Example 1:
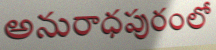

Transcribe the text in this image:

అనురాధపురంలో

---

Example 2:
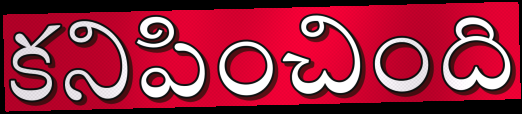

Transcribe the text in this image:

కనిపించింది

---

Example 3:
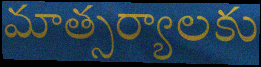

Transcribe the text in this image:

మాత్సర్యాలకు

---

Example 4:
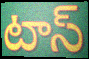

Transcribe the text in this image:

టాస్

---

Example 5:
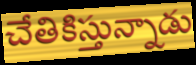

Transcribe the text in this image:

చేతికిస్తున్నాడు